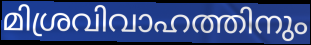
മിശ്രവിവാഹത്തിനും